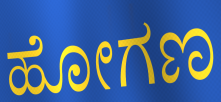
ಹೋಗಣ